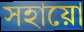
সহায়ো